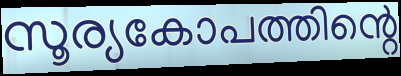
സൂര്യകോപത്തിന്റെ